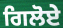
ਗਿਲੋਏ